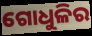
ଗୋଧୁଳିର